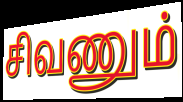
சிவணும்